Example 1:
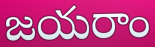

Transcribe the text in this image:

జయరాం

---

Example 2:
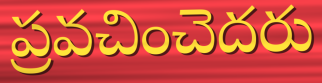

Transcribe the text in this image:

ప్రవచించెదరు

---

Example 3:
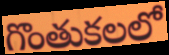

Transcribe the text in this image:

గొంతుకలలో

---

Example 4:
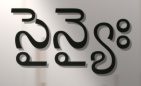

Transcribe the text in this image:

సైన్యైః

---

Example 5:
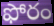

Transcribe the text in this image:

ఫోరం